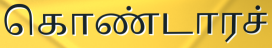
கொண்டாரச்